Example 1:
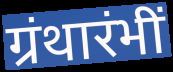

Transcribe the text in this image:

ग्रंथारंभीं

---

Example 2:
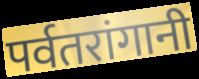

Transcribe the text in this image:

पर्वतरांगानी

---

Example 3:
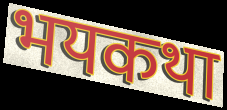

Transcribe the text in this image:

भयकथा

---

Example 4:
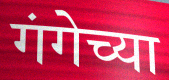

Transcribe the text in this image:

गंगेच्या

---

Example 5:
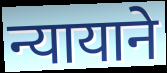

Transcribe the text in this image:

न्यायाने